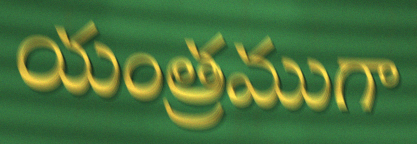
యంత్రముగా